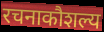
रचनाकौशल्य